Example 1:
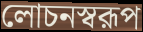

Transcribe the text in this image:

লোচনস্বরূপ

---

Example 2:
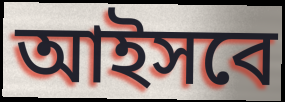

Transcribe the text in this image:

আইসবে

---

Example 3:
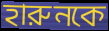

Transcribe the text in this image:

হারুনকে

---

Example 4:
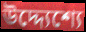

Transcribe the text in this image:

উদ্দ্যেশ্যে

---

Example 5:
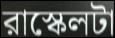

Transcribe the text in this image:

রাস্কেলটা